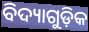
ବିଦ୍ୟାଗୁଡ଼ିକ